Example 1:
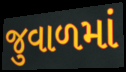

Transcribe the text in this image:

જુવાળમાં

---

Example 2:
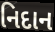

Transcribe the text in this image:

નિદાન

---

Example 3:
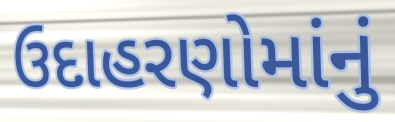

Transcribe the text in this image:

ઉદાહરણોમાંનું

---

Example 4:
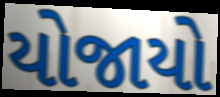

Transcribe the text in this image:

યોજાયો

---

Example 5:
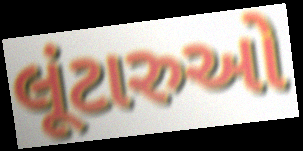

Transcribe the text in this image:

લૂંટારુઓ